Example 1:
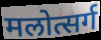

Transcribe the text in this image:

मलोत्सर्ग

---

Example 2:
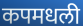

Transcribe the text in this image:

कपमधली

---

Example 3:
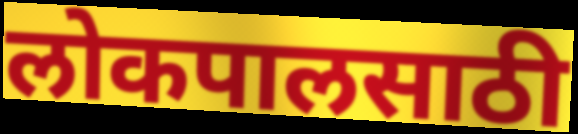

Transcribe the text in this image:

लोकपालसाठी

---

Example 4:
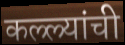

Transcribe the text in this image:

कल्ल्यांची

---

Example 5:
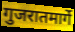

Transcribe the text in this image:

गुजरातमार्गे